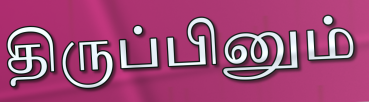
திருப்பினும்